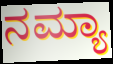
ನಮ್ಯಾ